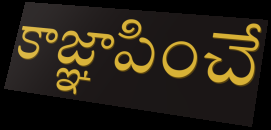
కాజ్ఞాపించే